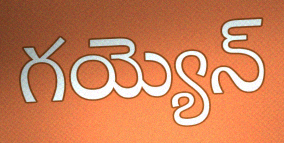
గయ్యెన్